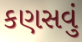
કણસવું